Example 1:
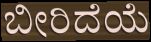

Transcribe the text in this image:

ಬೀರಿದೆಯೆ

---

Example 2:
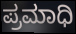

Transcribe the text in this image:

ಪ್ರಮಾಧಿ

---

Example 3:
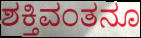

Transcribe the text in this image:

ಶಕ್ತಿವಂತನೂ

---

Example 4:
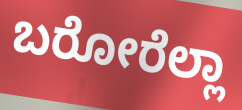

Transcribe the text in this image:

ಬರೋರೆಲ್ಲಾ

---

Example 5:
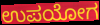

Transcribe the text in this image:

ಉಪಯೋಗ